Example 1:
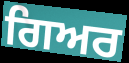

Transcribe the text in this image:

ਗਿਅਰ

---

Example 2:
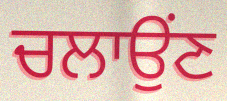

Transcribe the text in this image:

ਚਲਾਉਂਣ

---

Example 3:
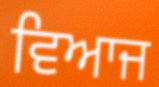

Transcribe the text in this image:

ਵਿਆਜ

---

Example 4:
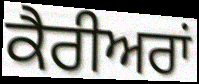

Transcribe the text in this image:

ਕੈਰੀਅਰਾਂ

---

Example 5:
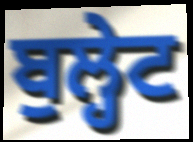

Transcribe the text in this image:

ਬੁਲ੍ਹੇਟ